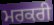
ਮਰਕਰੀ